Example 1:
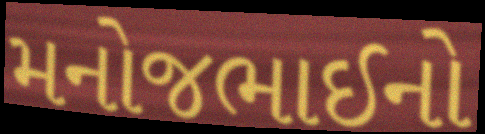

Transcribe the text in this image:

મનોજભાઈનો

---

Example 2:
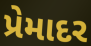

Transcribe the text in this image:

પ્રેમાદર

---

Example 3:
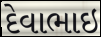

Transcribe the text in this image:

દેવાભાઇ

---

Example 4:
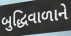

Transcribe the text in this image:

બુદ્ધિવાળાને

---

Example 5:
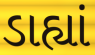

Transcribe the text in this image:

ડાહ્યાં